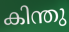
കിന്തു